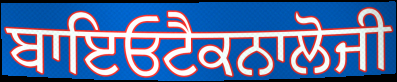
ਬਾਇਓਟੈਕਨਾਲੋਜੀ